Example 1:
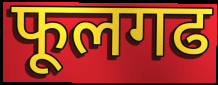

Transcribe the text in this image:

फूलगढ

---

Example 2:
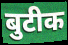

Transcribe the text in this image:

बुटीक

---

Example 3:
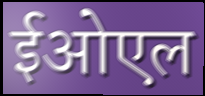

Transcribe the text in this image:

ईओएल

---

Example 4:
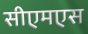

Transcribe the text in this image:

सीएमएस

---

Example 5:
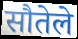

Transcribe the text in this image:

सौतेले